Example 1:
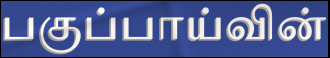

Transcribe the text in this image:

பகுப்பாய்வின்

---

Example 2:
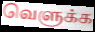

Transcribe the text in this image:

வெளுக்க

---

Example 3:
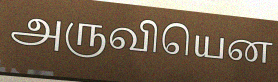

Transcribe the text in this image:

அருவியென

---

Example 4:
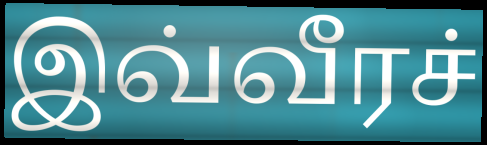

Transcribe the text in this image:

இவ்வீரச்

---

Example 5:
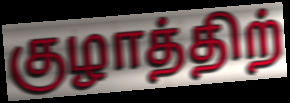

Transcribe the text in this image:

குழாத்திற்